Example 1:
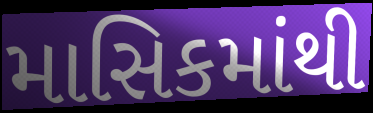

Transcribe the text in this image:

માસિકમાંથી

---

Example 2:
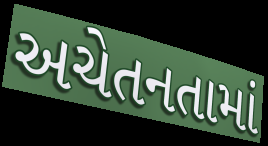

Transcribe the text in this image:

અચેતનતામાં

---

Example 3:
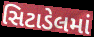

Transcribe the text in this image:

સિટાડેલમાં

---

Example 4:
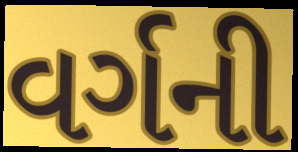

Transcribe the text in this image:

વર્ગની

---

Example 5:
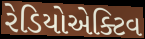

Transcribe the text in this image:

રેડિયોએક્ટિવ